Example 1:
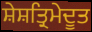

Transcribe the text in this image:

ਸ਼ੇਸ਼ਤ੍ਰਿਮੇਦੂਤ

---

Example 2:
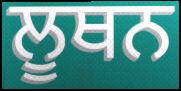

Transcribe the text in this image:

ਲੂਥਨ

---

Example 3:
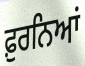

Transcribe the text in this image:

ਫ਼ੁਰਨਿਆਂ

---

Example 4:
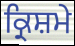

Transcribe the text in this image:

ਕ੍ਰਿਸ਼ਮੇ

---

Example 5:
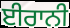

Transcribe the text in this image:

ਈਰਾਨੀ